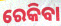
ରେକିବା